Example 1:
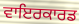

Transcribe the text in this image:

ਵਾਇਰਕਾਰਡ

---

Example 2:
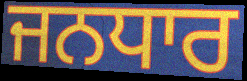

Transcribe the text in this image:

ਜਨਧਾਰ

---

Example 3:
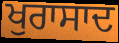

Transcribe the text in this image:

ਖੁਰਾਸਾਦ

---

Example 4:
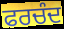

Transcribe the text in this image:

ਫਰਚੰਦ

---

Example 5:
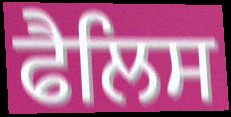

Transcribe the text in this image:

ਫੈਲਿਸ